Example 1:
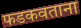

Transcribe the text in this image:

फडकवताना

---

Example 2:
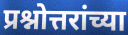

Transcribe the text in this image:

प्रश्नोत्तरांच्या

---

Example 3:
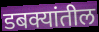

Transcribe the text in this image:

डबक्यांतील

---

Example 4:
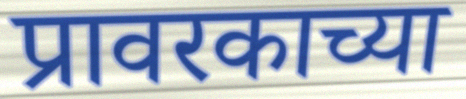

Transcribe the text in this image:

प्रावरकाच्या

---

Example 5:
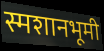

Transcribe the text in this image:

स्मशानभूमी